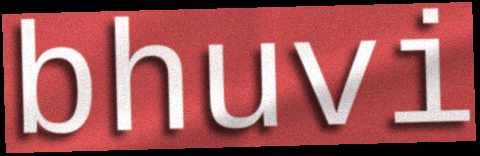
bhuvi